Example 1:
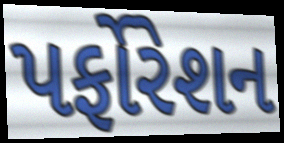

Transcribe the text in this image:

પર્ફોરેશન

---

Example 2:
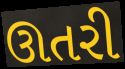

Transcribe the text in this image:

ઊતરી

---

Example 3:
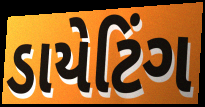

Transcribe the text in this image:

ડાયેટિંગ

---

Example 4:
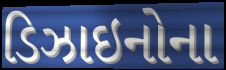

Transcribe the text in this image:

ડિઝાઇનોના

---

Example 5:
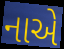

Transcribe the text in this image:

નાએ